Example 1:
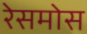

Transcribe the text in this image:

रेसमोस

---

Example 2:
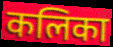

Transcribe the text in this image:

कलिका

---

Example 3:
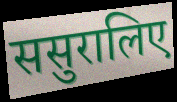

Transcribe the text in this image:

ससुरालिए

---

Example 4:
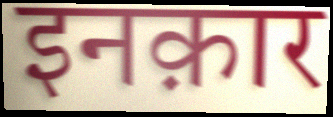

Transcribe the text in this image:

इनक़ार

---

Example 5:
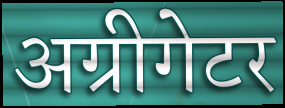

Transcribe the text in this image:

अग्रीगेटर